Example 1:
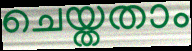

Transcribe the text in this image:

ചെയ്തതാം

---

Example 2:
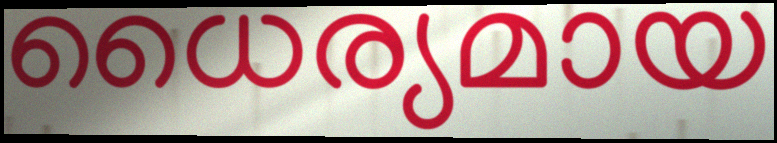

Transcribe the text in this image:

ധൈര്യമായ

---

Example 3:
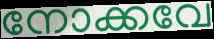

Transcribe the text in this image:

നോക്കവേ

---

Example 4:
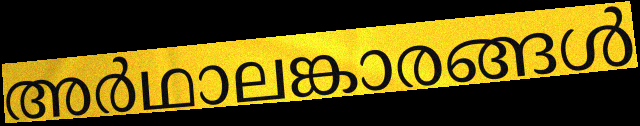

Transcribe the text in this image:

അർഥാലങ്കാരങ്ങൾ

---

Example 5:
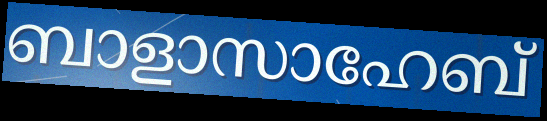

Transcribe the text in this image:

ബാളാസാഹേബ്